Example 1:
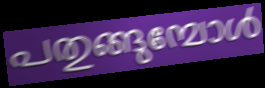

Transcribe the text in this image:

പതുങ്ങുമ്പോൾ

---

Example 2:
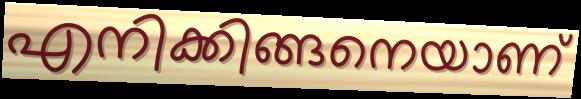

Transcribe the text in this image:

എനിക്കിങ്ങനെയാണ്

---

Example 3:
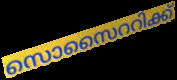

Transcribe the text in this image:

സൊസൈററിക്ക്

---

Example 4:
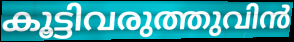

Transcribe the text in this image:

കൂട്ടിവരുത്തുവിൻ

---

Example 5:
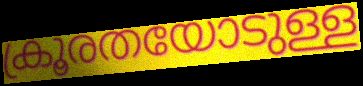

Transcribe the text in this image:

ക്രൂരതയോടുള്ള